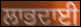
ਲਾਭਦਾਈ